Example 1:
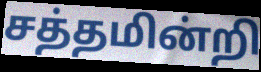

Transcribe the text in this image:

சத்தமின்றி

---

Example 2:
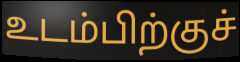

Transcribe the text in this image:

உடம்பிற்குச்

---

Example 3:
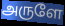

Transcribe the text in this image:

அருளே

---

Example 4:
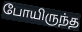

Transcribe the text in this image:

போயிருந்த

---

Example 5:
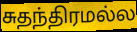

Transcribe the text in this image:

சுதந்திரமல்ல